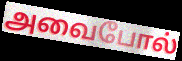
அவைபோல்